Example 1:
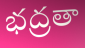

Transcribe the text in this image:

భద్రతా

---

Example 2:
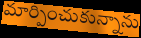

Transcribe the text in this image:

మార్పించుకున్నాను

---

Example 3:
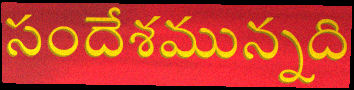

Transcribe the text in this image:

సందేశమున్నది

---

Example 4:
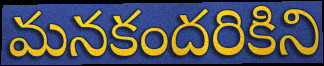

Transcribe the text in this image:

మనకందరికిని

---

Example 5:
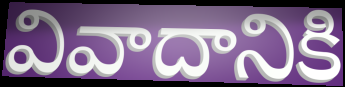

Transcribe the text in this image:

వివాదానికి